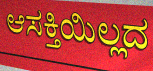
ಆಸಕ್ತಿಯಿಲ್ಲದ